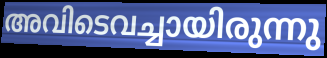
അവിടെവച്ചായിരുന്നു